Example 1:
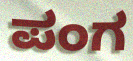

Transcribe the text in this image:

ಪಂಗ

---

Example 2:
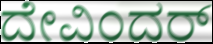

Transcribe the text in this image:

ದೇವಿಂದರ್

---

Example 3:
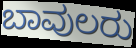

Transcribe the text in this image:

ಬಾವುಲರು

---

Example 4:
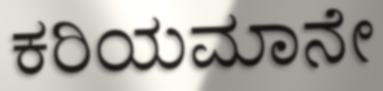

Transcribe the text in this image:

ಕರಿಯಮಾನೇ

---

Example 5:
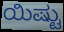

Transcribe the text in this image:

ಯಿಷ್ಟು